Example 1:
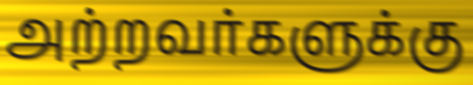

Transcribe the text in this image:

அற்றவர்களுக்கு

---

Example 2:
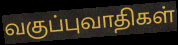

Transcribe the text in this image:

வகுப்புவாதிகள்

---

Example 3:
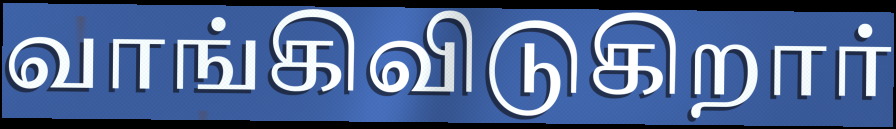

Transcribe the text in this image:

வாங்கிவிடுகிறார்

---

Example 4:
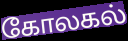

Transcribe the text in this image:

கோலகல்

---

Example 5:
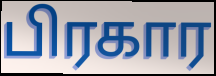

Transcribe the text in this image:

பிரகார